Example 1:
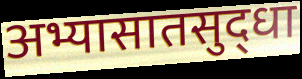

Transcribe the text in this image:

अभ्यासातसुद्धा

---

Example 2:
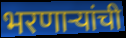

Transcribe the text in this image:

भरणाऱ्यांची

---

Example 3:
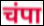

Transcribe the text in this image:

चंपा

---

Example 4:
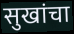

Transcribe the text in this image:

सुखांचा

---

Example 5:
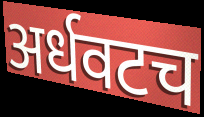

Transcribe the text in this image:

अर्धवटच